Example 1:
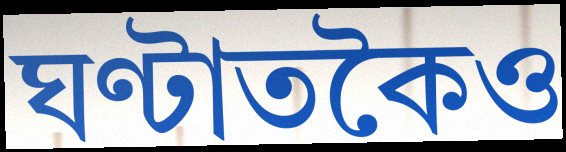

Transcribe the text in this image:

ঘণ্টাতকৈও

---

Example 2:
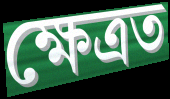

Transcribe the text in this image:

ক্ষেত্ৰত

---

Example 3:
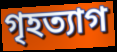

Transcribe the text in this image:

গৃহত্যাগ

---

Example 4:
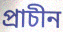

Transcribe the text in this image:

প্ৰাচীন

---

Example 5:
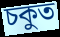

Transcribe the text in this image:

চকুত